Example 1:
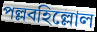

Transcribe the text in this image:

পল্লবহিল্লোল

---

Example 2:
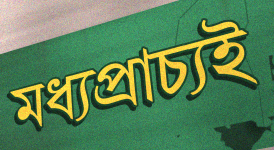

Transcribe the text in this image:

মধ্যপ্রাচ্যই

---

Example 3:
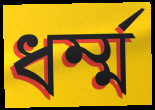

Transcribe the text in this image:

ধর্ম্ম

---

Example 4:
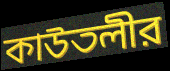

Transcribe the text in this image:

কাউতলীর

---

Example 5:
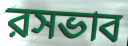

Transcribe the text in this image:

রসভাব